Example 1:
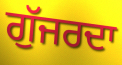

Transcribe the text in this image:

ਗੁੱਜਰਦਾ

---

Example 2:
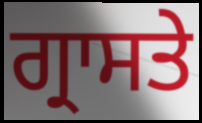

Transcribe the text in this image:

ਗ੍ਰਾਸਤੇ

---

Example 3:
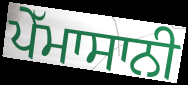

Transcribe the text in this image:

ਪੇੱਮਾਸਾਨੀ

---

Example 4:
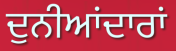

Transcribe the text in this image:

ਦੁਨੀਆਂਦਾਰਾਂ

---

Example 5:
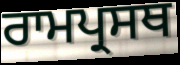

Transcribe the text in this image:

ਰਾਮਪ੍ਰਸਥ